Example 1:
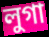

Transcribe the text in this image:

লুগা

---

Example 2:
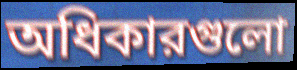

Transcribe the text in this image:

অধিকারগুলো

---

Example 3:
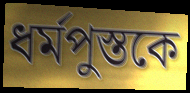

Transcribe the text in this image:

ধর্মপুস্তকে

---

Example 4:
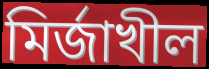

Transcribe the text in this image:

মির্জাখীল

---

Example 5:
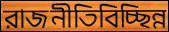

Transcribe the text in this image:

রাজনীতিবিচ্ছিন্ন